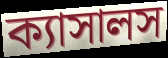
ক্যাসালস